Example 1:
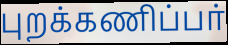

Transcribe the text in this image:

புறக்கணிப்பர்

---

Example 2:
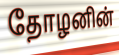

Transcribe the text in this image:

தோழனின்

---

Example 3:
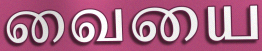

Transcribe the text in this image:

வையை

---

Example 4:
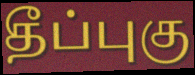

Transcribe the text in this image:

தீப்புகு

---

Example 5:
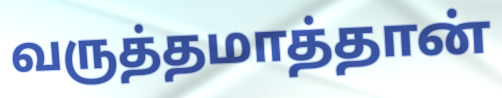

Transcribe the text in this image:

வருத்தமாத்தான்